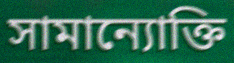
সামান্যোক্তি